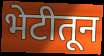
भेटीतून